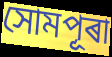
সোমপূৰা